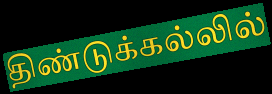
திண்டுக்கல்லில்